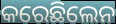
କରେଛିଲେନ